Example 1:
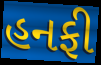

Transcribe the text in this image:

હનફી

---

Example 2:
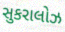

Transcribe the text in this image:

સુકરાલોઝ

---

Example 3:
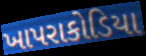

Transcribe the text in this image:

ખાપરાકોડિયા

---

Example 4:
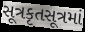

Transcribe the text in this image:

સૂત્રકૃતસૂત્રમાં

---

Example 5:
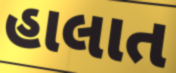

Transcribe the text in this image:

હાલાત